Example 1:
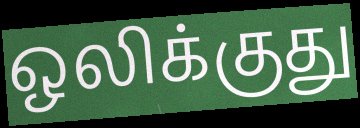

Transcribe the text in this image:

ஒலிக்குது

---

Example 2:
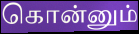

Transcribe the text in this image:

கொன்னும்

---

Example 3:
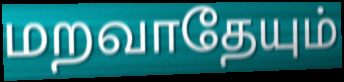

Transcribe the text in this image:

மறவாதேயும்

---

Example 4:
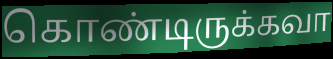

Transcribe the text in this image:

கொண்டிருக்கவா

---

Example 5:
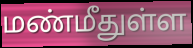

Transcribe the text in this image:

மண்மீதுள்ள